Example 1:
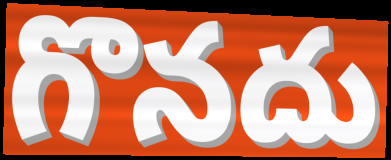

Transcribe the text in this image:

గొనదు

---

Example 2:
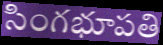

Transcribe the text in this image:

సింగభూపతి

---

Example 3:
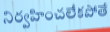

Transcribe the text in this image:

నిర్వహించలేకపోతే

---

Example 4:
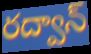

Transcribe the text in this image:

రద్వాన్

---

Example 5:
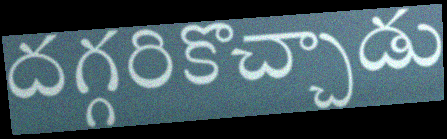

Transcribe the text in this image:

దగ్గరికొచ్చాడు